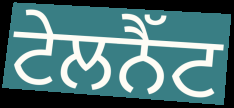
ਟੇਲਨੈੱਟ